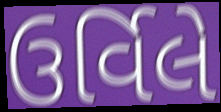
ઉર્વિલે